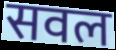
सवल